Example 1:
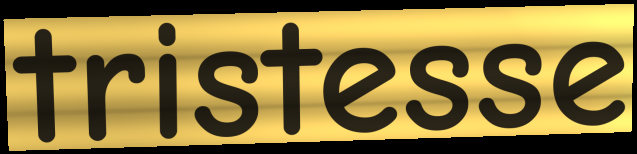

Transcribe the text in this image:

tristesse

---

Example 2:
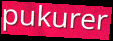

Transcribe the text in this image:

pukurer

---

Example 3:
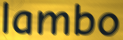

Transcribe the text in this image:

lambo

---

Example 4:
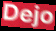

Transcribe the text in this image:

Dejo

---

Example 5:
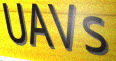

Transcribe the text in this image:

UAVs